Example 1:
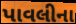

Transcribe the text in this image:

પાવલીના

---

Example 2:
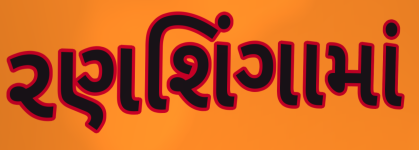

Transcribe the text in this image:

રણશિંગામાં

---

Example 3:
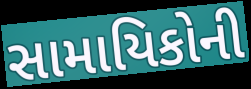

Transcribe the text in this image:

સામાયિકોની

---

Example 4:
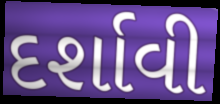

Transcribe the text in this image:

દર્શાવી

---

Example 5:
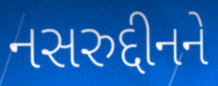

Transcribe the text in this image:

નસરુદ્દીનને